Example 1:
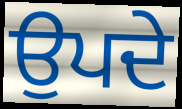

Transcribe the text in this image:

ਉਪਦੇ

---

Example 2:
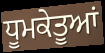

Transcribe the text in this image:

ਧੂਮਕੇਤੂਆਂ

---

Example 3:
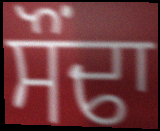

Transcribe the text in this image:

ਸੌਂਢਾ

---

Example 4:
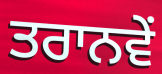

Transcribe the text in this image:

ਤਰਾਨਵੇਂ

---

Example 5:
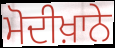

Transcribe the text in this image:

ਮੋਦੀਖ਼ਾਨੇ